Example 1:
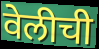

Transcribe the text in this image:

वेलीची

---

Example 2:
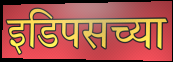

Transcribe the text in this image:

इडिपसच्या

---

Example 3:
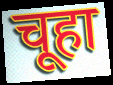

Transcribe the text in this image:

चूहा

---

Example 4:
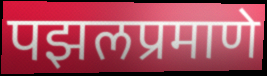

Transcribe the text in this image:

पझलप्रमाणे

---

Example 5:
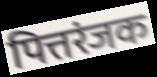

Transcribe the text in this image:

पित्तरंजक